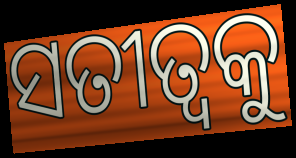
ସତୀତ୍ୱକୁ